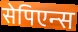
सेपिएन्स